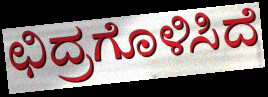
ಛಿದ್ರಗೊಳಿಸಿದೆ